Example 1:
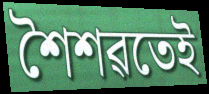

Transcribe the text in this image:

শৈশৱতেই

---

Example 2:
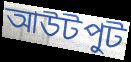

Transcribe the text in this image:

আউটপুট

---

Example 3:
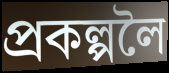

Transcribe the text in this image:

প্ৰকল্পলৈ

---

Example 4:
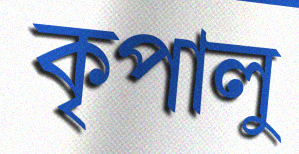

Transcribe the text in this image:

কৃপালু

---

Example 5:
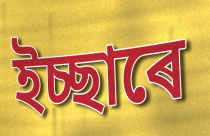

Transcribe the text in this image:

ইচ্ছাৰে